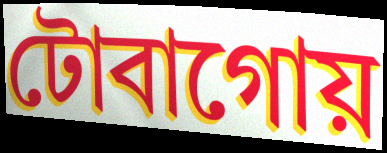
টোবাগোয়